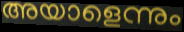
അയാളെന്നും